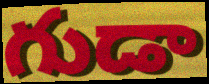
గుడా